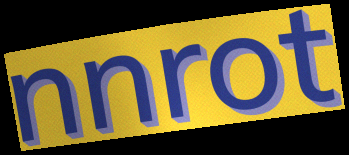
nnrot